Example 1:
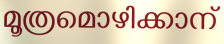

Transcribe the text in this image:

മൂത്രമൊഴിക്കാന്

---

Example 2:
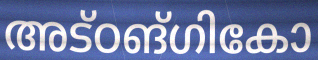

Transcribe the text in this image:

അട്ഠങ്ഗികോ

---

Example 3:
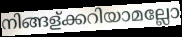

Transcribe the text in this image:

നിങ്ങള്ക്കറിയാമല്ലോ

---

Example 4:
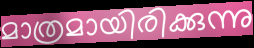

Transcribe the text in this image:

മാത്രമായിരിക്കുന്നു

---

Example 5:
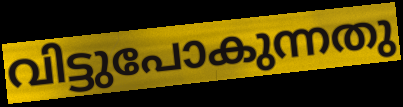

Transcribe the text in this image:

വിട്ടുപോകുന്നതു